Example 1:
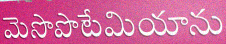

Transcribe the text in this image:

మెసొపొటేమియాను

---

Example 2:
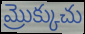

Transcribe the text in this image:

మ్రొక్కుచు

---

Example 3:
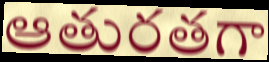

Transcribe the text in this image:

ఆతురతగా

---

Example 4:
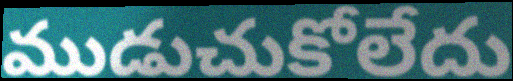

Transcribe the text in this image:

ముడుచుకోలేదు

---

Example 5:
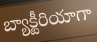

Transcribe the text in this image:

బ్యాక్టీరియాగా